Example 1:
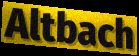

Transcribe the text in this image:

Altbach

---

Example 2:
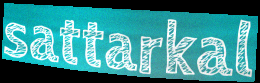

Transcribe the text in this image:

sattarkal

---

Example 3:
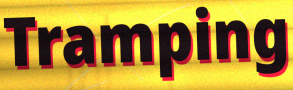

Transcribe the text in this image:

Tramping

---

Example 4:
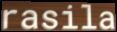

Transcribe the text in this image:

rasila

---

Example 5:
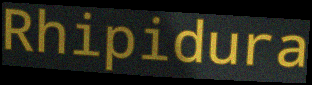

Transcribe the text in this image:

Rhipidura